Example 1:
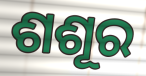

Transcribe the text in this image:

ଶଶୂର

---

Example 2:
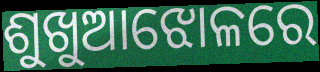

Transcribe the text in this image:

ଶୁଖୁଆଝୋଳରେ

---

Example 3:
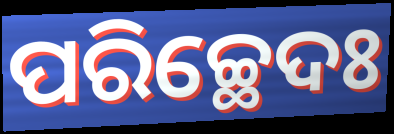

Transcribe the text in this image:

ପରିଚ୍ଛେଦଃ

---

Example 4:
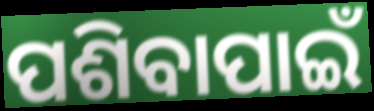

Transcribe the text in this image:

ପଶିବାପାଇଁ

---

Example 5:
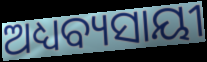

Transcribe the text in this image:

ଅଧ୍ୟବ୍ୟସାୟୀ